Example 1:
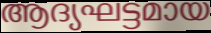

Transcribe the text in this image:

ആദ്യഘട്ടമായ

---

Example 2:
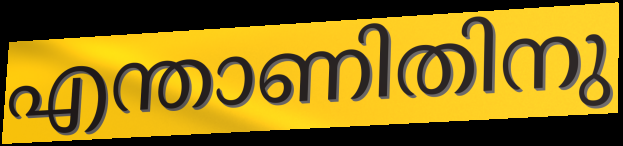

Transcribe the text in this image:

എന്താണിതിനു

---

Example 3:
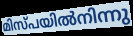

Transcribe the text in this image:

മിസ്പയിൽനിന്നു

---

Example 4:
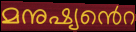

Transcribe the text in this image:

മനുഷ്യൻെറ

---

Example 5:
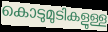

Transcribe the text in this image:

കൊടുമുടികളുള്ള